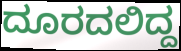
ದೂರದಲಿದ್ದ